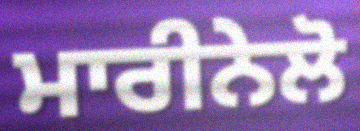
ਮਾਰੀਨੇਲੋ